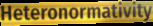
Heteronormativity